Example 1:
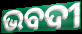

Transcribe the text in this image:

ଭବଦୀ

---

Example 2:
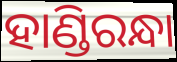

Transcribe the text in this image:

ହାଣ୍ଡିରନ୍ଧା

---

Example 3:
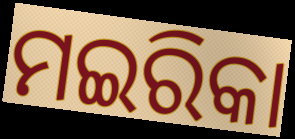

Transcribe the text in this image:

ମଇରିକା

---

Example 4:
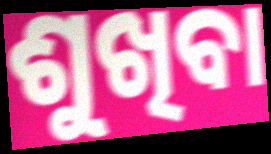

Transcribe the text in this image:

ଶୁଖିବା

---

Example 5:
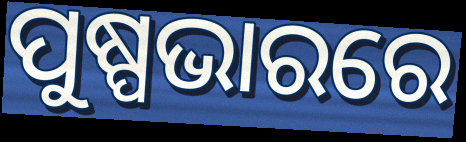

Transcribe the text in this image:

ପୁଷ୍ପଭାରରେ